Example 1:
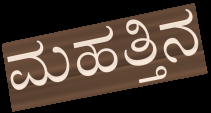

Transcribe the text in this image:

ಮಹತ್ತಿನ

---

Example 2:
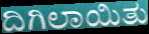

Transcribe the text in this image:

ದಿಗಿಲಾಯಿತು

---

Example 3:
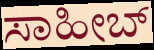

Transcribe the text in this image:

ಸಾಹೀಬ್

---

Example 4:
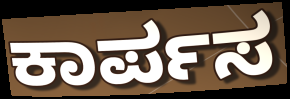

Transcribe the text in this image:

ಕಾರ್ಪಸ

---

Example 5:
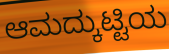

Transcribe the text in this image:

ಆಮದ್ಕುಟ್ಟಿಯ